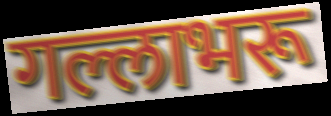
गल्लाभरू